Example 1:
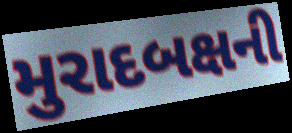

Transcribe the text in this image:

મુરાદબક્ષની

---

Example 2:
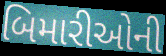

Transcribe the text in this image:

બિમારીઓની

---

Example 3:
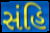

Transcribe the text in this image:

સંહિ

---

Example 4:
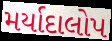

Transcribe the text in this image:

મર્યાદાલોપ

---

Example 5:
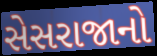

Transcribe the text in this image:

સેસરાજાનો